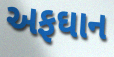
અફઘાન